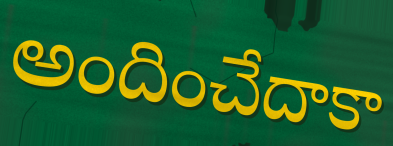
అందించేదాకా